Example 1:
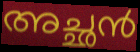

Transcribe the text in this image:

അച്ഛൻ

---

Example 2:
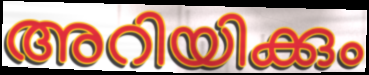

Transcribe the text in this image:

അറിയിക്കും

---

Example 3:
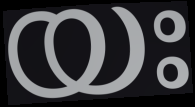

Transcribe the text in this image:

യഃ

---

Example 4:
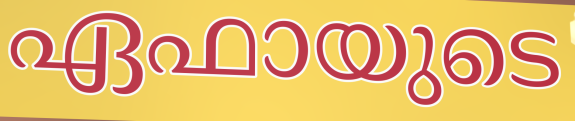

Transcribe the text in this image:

ഏഫായുടെ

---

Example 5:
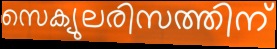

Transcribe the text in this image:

സെക്യുലരിസത്തിന്